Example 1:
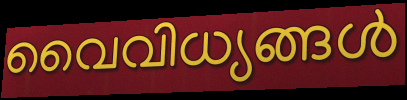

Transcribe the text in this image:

വൈവിധ്യങ്ങൾ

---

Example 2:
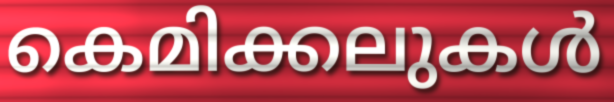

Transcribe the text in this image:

കെമിക്കലുകൾ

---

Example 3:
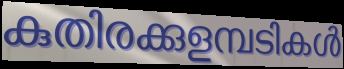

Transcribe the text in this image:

കുതിരക്കുളമ്പടികൾ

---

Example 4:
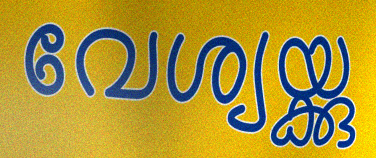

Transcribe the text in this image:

വേശ്യയ്ക്കു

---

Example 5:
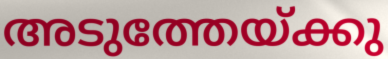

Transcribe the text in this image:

അടുത്തേയ്ക്കു